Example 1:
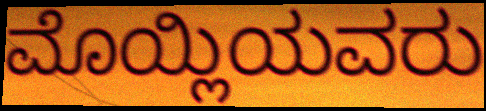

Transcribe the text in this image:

ಮೊಯ್ಲಿಯವರು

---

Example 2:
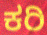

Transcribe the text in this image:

ಕರಿ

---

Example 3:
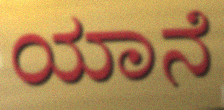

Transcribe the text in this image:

ಯಾನೆ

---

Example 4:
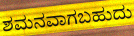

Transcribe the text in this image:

ಶಮನವಾಗಬಹುದು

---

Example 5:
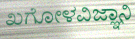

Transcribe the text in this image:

ಖಗೋಳವಿಜ್ಞಾನಿ